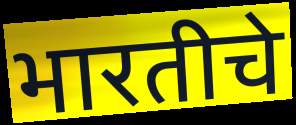
भारतीचे